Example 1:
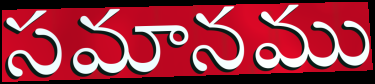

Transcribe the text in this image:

సమానము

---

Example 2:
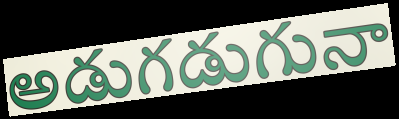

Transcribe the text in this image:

అడుగడుగునా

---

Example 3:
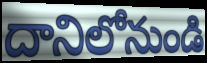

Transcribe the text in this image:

దానిలోనుండి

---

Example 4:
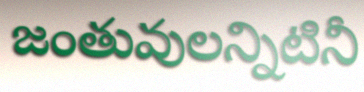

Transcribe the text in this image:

జంతువులన్నిటినీ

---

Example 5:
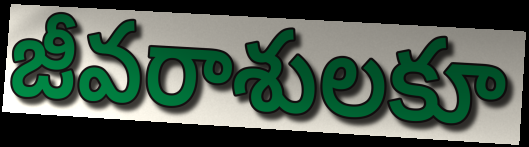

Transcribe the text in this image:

జీవరాశులకూ